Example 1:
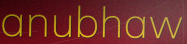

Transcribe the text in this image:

anubhaw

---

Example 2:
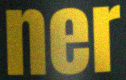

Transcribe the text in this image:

ner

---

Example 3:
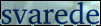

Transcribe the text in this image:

svarede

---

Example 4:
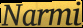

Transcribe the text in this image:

Narmi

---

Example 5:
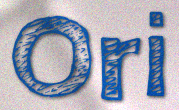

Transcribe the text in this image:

Ori